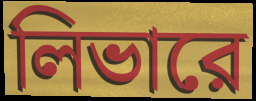
লিভারে